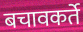
बचावकर्ते